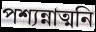
পশ্যন্নাত্মনি